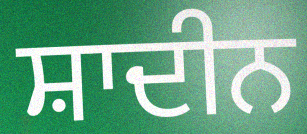
ਸ਼ਾਦੀਨ